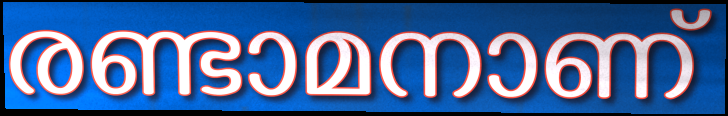
രണ്ടാമനാണ്